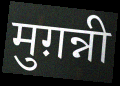
मुग़न्नी